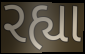
રહ્યા